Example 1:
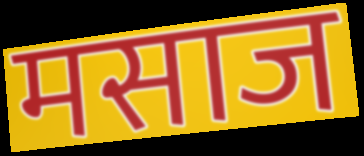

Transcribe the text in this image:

मसाज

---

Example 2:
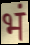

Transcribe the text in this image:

भं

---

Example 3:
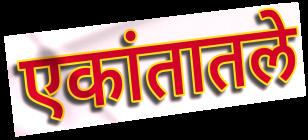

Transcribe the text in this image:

एकांतातले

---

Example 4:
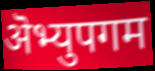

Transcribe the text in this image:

ऄभ्युपगम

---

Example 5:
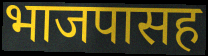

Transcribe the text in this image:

भाजपासह